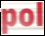
pol